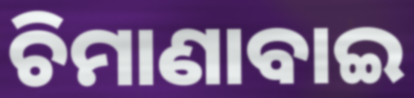
ଚିମାଣାବାଇ